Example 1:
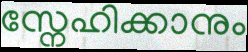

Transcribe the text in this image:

സ്നേഹിക്കാനും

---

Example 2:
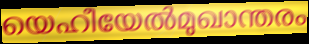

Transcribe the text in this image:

യെഹീയേൽമുഖാന്തരം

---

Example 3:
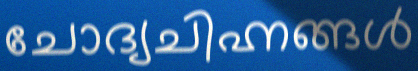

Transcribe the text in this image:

ചോദ്യചിഹ്നങ്ങൾ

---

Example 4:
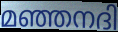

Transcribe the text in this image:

മഞ്ഞനദി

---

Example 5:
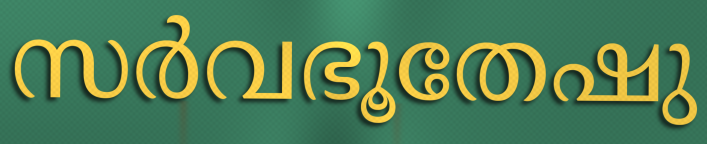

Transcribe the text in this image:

സർവഭൂതേഷു